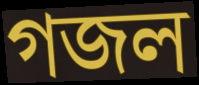
গজল